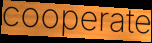
cooperate